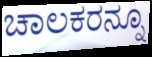
ಚಾಲಕರನ್ನೂ